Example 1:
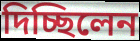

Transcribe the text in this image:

দিচ্ছিলেন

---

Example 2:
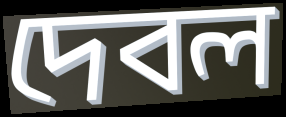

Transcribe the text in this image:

দেবল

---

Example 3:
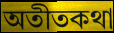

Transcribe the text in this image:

অতীতকথা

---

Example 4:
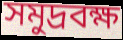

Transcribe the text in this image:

সমুদ্রবক্ষ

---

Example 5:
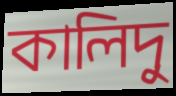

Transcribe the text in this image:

কালিদু